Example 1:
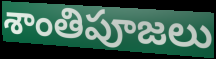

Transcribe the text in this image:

శాంతిపూజలు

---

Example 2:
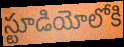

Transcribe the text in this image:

స్టూడియోలోకి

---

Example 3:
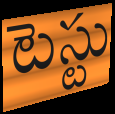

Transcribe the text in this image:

టెస్టు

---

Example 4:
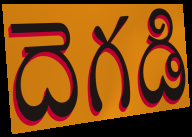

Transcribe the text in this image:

దెగడి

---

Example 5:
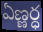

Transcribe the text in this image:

ఏణ్ణర్ధ